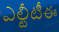
ఎల్టీటీఈ